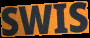
SWIS